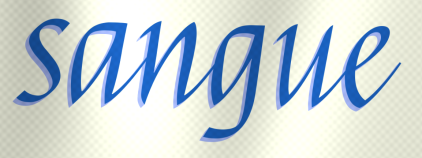
sangue